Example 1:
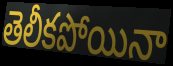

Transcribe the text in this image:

తెలీకపోయినా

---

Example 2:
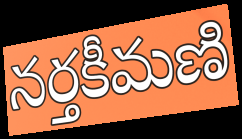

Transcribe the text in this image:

నర్తకీమణి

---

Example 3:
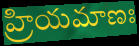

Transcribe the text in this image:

హ్రియమాణః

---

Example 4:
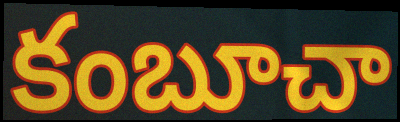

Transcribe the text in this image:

కంబూచా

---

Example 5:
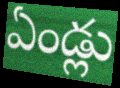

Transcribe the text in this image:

ఏండ్లు